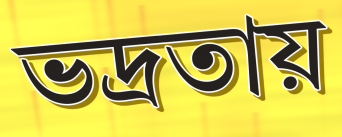
ভদ্রতায়